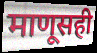
माणूसही